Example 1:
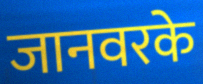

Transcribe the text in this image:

जानवरके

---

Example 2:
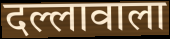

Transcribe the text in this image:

दल्लावाला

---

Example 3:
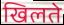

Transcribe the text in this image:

खिलते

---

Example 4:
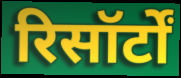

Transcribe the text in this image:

रिसॉर्टों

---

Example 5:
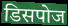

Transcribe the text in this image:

डिसपोज